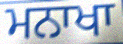
ਮਨਾਖਾ